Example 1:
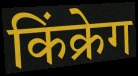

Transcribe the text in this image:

किंक्रेग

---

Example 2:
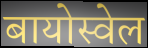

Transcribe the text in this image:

बायोस्वेल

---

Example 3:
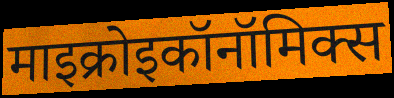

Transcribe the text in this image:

माइक्रोइकॉनॉमिक्स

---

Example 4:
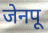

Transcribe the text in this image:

जेनपू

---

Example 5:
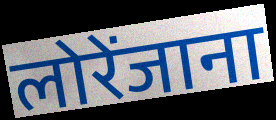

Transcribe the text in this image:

लोरेंजाना